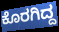
ಕೊರಗಿದ್ದ